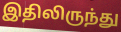
இதிலிருந்து